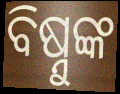
ବିଷ୍ନୁଙ୍କ